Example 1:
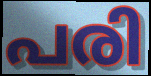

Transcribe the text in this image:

പരി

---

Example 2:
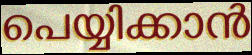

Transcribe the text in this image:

പെയ്യിക്കാൻ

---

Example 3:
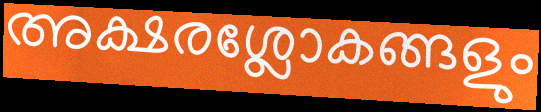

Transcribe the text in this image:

അക്ഷരശ്ലോകങ്ങളും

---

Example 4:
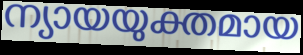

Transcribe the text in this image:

ന്യായയുക്തമായ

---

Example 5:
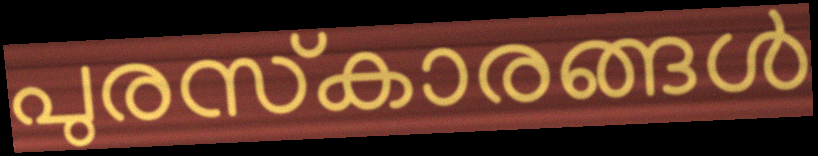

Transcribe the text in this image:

പുരസ്‌കാരങ്ങൾ